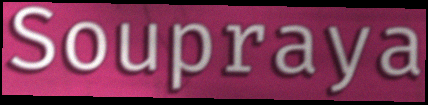
Soupraya